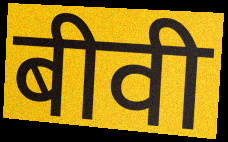
बीवी